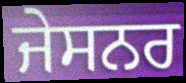
ਜੇਸਨਰ